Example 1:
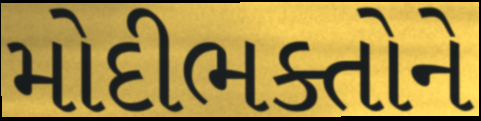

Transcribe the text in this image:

મોદીભક્તોને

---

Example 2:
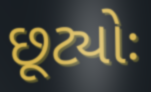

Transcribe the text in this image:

છૂટ્યોઃ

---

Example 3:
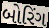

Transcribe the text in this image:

બોરિંગ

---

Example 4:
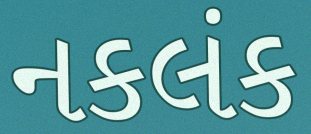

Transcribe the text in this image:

નકલંક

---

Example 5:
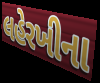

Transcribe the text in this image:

લહેરખીના